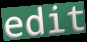
edit